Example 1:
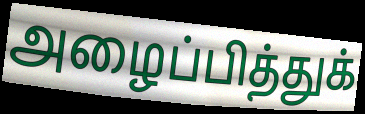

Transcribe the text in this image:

அழைப்பித்துக்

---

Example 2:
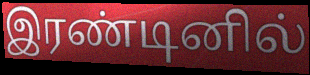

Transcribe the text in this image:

இரண்டினில்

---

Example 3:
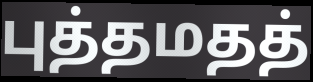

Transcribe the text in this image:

புத்தமதத்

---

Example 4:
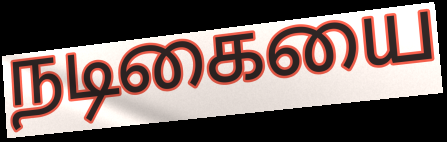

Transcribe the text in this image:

நடிகையை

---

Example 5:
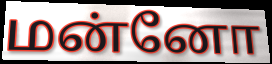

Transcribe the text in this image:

மன்னோ